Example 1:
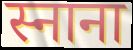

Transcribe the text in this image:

स्नाना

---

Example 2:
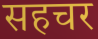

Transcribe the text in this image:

सहचर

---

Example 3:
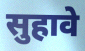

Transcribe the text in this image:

सुहावे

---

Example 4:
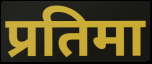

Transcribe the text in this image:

प्रतिमा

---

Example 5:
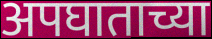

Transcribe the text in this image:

अपघाताच्या